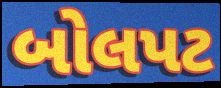
બોલપટ